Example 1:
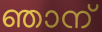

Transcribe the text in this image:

ഞാന്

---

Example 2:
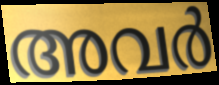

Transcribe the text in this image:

അവർ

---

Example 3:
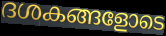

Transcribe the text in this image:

ദശകങ്ങളോടെ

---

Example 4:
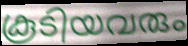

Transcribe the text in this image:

കൂടിയവരും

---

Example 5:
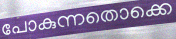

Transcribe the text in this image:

പോകുന്നതൊക്കെ